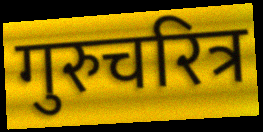
गुरुचरित्र